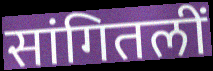
सांगितलीं